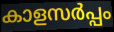
കാളസർപ്പം